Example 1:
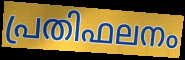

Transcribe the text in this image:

പ്രതിഫലനം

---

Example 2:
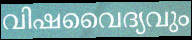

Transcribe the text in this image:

വിഷവൈദ്യവും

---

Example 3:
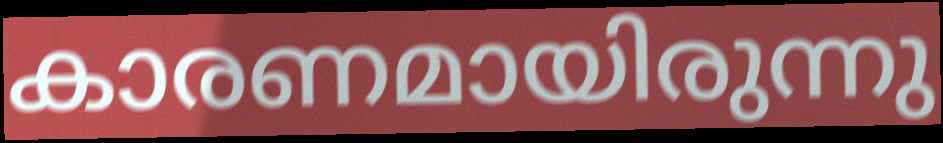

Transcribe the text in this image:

കാരണമായിരുന്നു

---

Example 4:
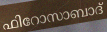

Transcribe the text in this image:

ഫിറോസാബാദ്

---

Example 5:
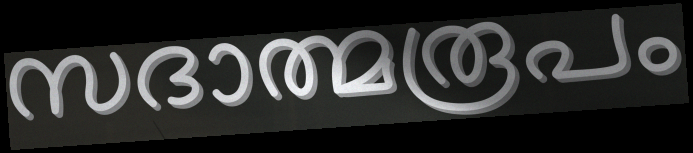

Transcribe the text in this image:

സദാത്മരൂപം